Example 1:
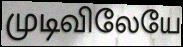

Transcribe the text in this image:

முடிவிலேயே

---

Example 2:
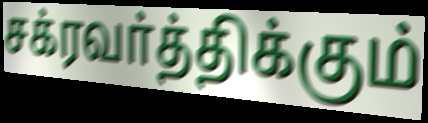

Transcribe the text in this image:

சக்ரவர்த்திக்கும்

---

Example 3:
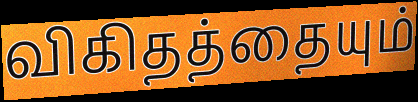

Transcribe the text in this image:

விகிதத்தையும்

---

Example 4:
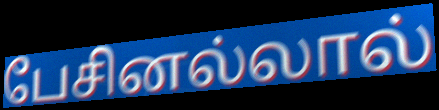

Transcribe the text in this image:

பேசினல்லால்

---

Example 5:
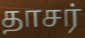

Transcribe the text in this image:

தாசர்